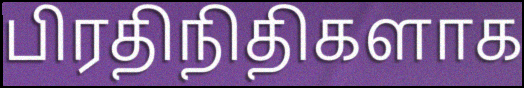
பிரதிநிதிகளாக